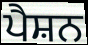
ਪੈਸ਼ਨ